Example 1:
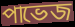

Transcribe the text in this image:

পাভেজ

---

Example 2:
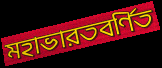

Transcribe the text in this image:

মহাভারতবর্ণিত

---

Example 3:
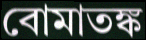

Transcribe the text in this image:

বোমাতঙ্ক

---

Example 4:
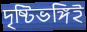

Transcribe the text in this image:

দৃষ্টিভঙ্গিই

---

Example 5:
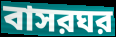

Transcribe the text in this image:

বাসরঘর